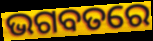
ଭଗବତରେ